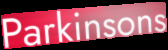
Parkinsons